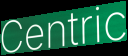
Centric